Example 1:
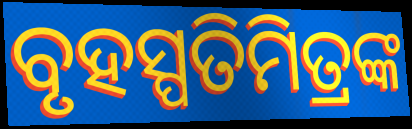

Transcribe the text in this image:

ବୃହସ୍ପତିମିତ୍ରଙ୍କ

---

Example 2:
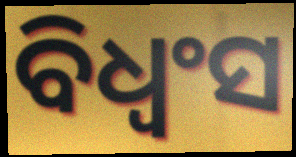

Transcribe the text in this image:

ବିଧ୍ଵଂସ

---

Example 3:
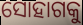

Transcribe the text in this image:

ସୋହାଗକୁ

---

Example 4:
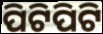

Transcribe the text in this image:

ପିଟିପିଟି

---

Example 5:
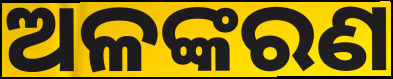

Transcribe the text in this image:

ଅଳଙ୍କରଣ